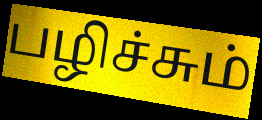
பழிச்சும்